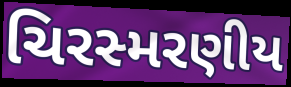
ચિરસ્મરણીય